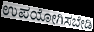
ಉಪಯೋಗಿಸಬೇಡಿ